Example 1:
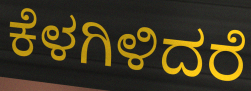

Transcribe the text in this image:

ಕೆಳಗಿಳಿದರೆ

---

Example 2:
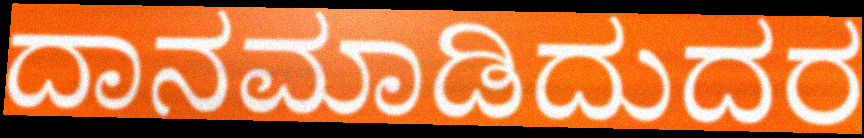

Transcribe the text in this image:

ದಾನಮಾಡಿದುದರ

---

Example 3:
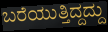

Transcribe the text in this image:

ಬರೆಯುತ್ತಿದ್ದದ್ದು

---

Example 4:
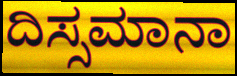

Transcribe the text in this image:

ದಿಸ್ಸಮಾನಾ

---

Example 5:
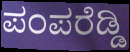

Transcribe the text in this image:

ಪಂಪರೆಡ್ಡಿ